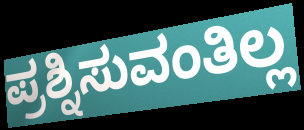
ಪ್ರಶ್ನಿಸುವಂತಿಲ್ಲ